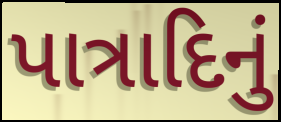
પાત્રાદિનું